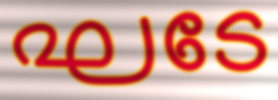
ഘടേ